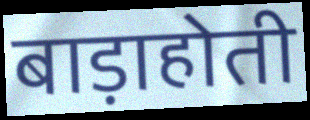
बाड़ाहोती